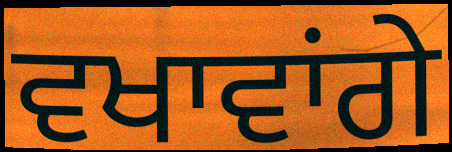
ਵਖਾਵਾਂਗੇ